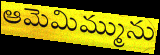
ఆమెమిమ్మును